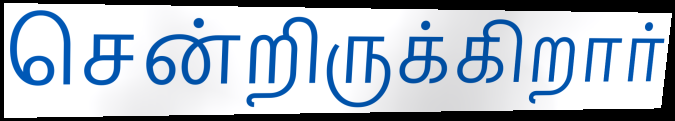
சென்றிருக்கிறார்